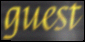
guest